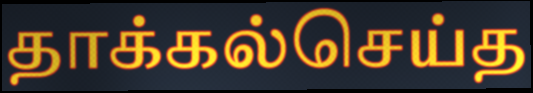
தாக்கல்செய்த